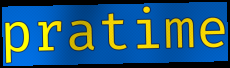
pratime